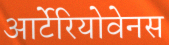
आर्टेरियोवेनस